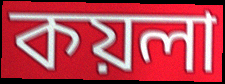
কয়লা